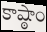
కాష్ఠాం